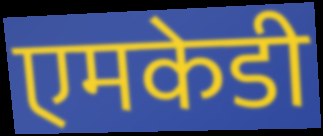
एमकेडी